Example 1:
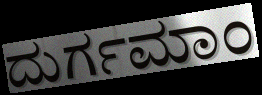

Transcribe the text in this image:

ದುರ್ಗಮಾಂ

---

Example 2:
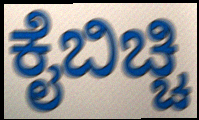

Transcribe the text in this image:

ಕೈಬಿಚ್ಚಿ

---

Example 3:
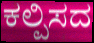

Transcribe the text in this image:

ಕಲ್ಪಿಸದ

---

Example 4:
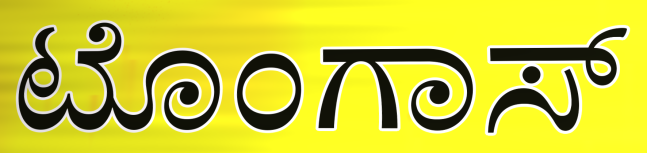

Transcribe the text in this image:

ಟೊಂಗಾಸ್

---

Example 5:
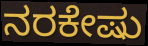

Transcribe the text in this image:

ನರಕೇಷು